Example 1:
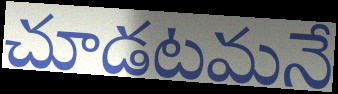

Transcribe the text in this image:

చూడటమనే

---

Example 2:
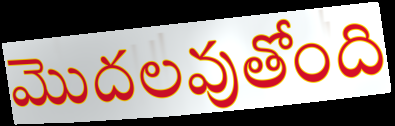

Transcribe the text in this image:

మొదలవుతోంది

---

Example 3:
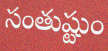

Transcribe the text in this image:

సంతుష్టుం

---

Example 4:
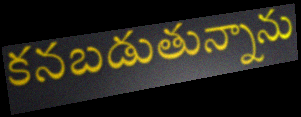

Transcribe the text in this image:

కనబడుతున్నాను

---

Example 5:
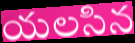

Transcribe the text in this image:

యలసిన